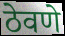
ठेवणे